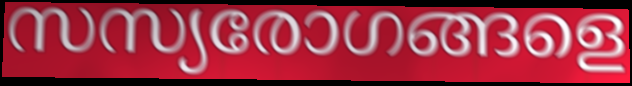
സസ്യരോഗങ്ങളെ